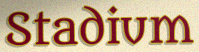
Stadium